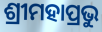
ଶ୍ରୀମହାପ୍ରଭୁ